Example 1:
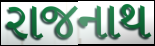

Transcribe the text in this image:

રાજનાથ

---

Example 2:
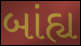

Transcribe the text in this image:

બાંહ્ય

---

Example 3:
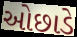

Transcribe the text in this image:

ઓછાડે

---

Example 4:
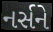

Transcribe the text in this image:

નર્સને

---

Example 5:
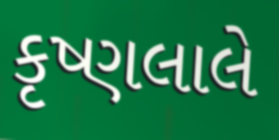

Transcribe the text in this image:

કૃષ્ણલાલે